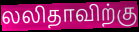
லலிதாவிற்கு